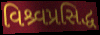
વિશ્ર્વપ્રસિદ્ધ